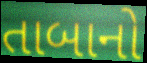
તાબાનો